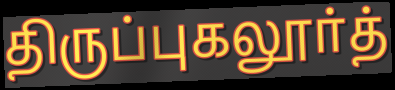
திருப்புகலூர்த்